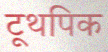
टूथपिक